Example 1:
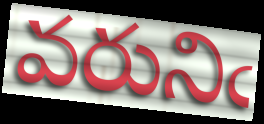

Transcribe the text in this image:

వరునిఁ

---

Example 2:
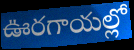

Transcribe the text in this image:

ఊరగాయల్లో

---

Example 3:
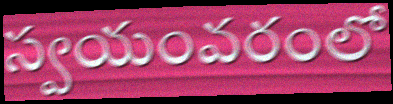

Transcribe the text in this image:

స్వయంవరంలో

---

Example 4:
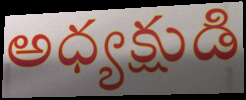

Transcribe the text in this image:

అధ్యక్షుడి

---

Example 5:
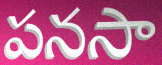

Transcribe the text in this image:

పనసా